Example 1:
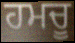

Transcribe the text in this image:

ਹਮਚੂ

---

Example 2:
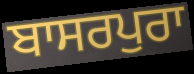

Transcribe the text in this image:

ਬਾਸਰਪੁਰਾ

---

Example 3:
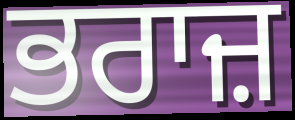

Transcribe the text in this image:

ਭਰਾਜ਼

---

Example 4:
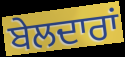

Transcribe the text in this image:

ਬੇਲਦਾਰਾਂ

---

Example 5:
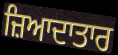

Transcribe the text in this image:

ਜ਼ਿਆਦਾਤਾਰ